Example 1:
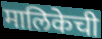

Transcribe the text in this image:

मालिकेची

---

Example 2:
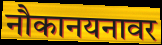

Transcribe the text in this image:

नौकानयनावर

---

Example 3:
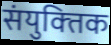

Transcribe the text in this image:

संयुक्‍तिक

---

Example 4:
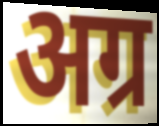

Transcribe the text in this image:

अग्र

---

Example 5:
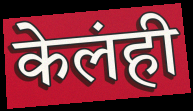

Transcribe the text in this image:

केलंही